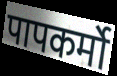
पापकर्मो